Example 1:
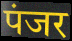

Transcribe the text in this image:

पंजर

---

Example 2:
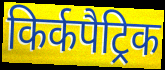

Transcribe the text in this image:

किर्कपैट्रिक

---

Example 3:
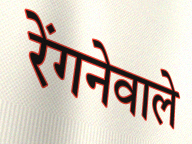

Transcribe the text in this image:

रेंगनेवाले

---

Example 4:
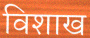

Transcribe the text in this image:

विशाख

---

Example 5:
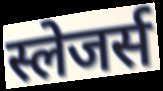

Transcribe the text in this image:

स्लेजर्स